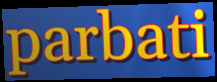
parbati